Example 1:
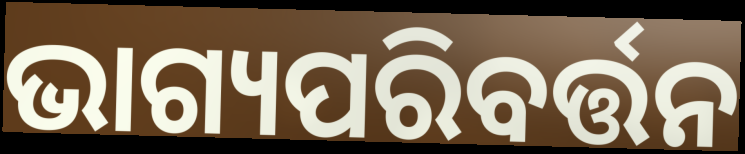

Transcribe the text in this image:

ଭାଗ୍ୟପରିବର୍ତ୍ତନ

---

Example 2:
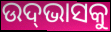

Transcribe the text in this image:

ଉଦ୍‌ଭାସକୁ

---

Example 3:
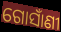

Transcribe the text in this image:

ଗୋସାଁଣୀ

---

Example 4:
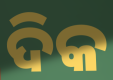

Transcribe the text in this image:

ଦିକ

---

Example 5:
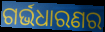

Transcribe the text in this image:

ଗର୍ଭଧାରଣର